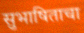
सुभाषिताचा